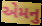
એમનુ